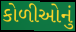
કોળીઓનું